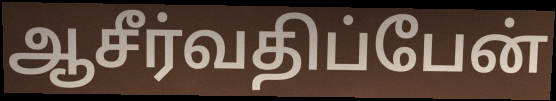
ஆசீர்வதிப்பேன்